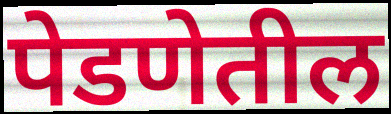
पेडणेतील